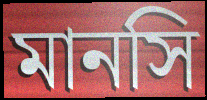
মানসি